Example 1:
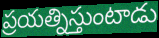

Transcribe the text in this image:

ప్రయత్నిస్తుంటాడు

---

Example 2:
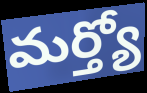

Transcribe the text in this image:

మర్త్యో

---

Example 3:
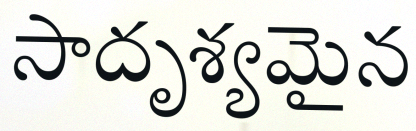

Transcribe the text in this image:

సాదృశ్యమైన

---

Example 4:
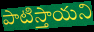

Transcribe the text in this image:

పాటిస్తాయని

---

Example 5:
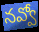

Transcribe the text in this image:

నవ్వో